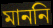
মাননি